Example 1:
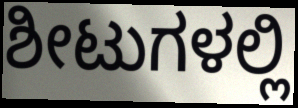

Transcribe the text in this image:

ಶೀಟುಗಳಲ್ಲಿ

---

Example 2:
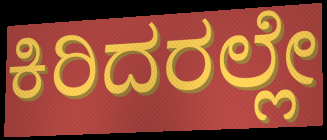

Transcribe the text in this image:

ಕಿರಿದರಲ್ಲೇ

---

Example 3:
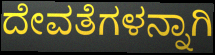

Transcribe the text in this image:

ದೇವತೆಗಳನ್ನಾಗಿ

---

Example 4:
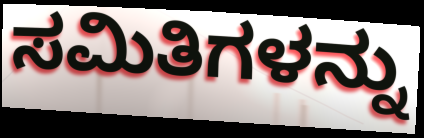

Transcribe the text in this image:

ಸಮಿತಿಗಳನ್ನು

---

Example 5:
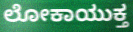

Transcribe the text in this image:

ಲೋಕಾಯುಕ್ತ